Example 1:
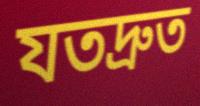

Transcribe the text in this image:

যতদ্রুত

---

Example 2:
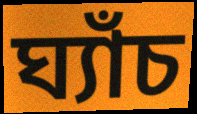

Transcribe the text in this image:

ঘ্যাঁচ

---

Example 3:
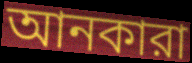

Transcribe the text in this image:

আনকারা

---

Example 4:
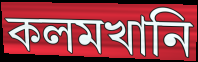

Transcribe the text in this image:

কলমখানি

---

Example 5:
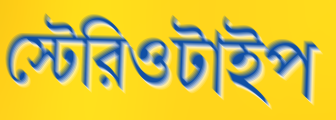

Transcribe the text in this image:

স্টেরিওটাইপ